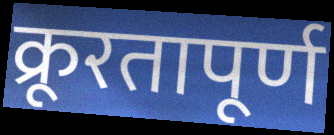
क्रूरतापूर्ण